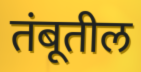
तंबूतील